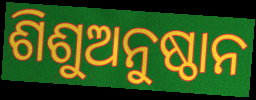
ଶିଶୁଅନୁଷ୍ଠାନ